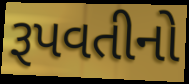
રૂપવતીનો